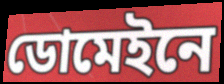
ডোমেইনে